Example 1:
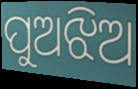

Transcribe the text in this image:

ପୁଅଝିଅ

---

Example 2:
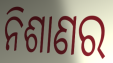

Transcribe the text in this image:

ନିଶାଣର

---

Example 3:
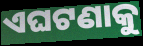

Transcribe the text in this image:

ଏଘଟଣାକୁ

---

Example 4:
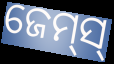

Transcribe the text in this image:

ଜେମ୍‌ସ୍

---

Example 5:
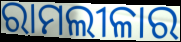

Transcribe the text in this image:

ରାମଲୀଳାର